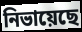
নিভায়েছে